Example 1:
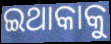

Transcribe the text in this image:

ଇଥାକାକୁ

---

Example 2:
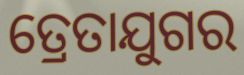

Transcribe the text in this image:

ତ୍ରେତାଯୁଗର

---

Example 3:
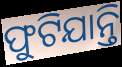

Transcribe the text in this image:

ଫୁଟିଯାନ୍ତି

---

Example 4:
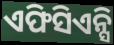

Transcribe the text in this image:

ଏଫିସିଏନ୍ସି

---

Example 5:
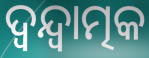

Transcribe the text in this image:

ଦ୍ଵନ୍ଦ୍ଵାତ୍ମକ